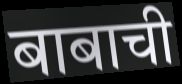
बाबाची